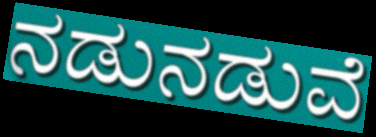
ನಡುನಡುವೆ